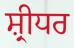
ਸ਼੍ਰੀਧਰ